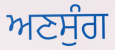
ਅਣਸੁੰਗ